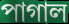
পাগাল